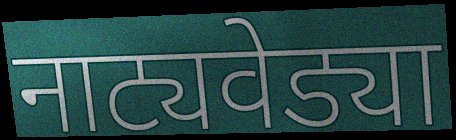
नाट्यवेड्या